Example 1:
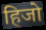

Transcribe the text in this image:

हिजो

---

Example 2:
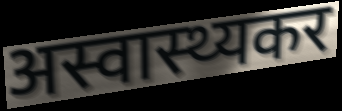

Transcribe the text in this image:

अस्वास्थ्यकर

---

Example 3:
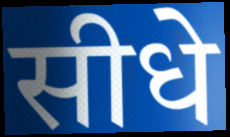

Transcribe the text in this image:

सीधे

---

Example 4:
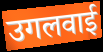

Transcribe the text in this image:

उगलवाई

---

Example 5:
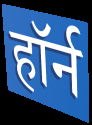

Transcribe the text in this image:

हॉर्न